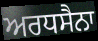
ਅਰਧਸੈਨਾ